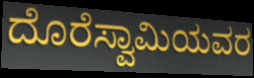
ದೊರೆಸ್ವಾಮಿಯವರ